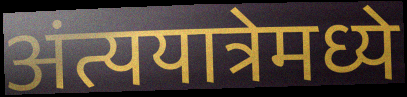
अंत्ययात्रेमध्ये